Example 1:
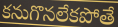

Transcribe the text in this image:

కనుగొనలేకపోతే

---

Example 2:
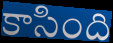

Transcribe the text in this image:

కాసింది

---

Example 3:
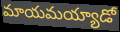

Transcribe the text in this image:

మాయమయ్యాడో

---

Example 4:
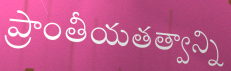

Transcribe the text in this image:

ప్రాంతీయతత్వాన్ని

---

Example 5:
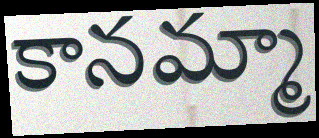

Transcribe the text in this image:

కానమ్మా